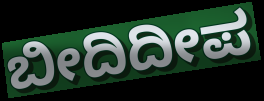
ಬೀದಿದೀಪ